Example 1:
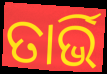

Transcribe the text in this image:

ତାର୍ଭି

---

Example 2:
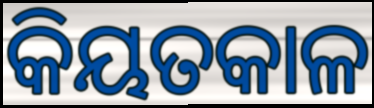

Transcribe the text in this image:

କିୟତକାଳ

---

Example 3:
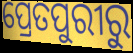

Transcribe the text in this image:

ପ୍ରେତପୁରୀରୁ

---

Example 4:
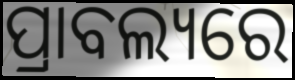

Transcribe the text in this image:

ପ୍ରାବଲ୍ୟରେ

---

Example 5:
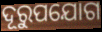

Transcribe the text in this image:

ଦୂରୁପଯୋଗ